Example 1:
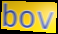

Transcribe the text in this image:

bov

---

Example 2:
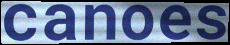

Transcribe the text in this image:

canoes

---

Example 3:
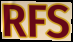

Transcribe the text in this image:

RFS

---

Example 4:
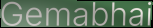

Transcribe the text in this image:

Gemabhai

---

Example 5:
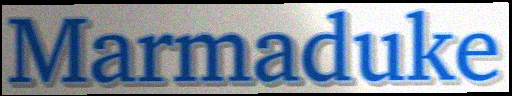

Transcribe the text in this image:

Marmaduke